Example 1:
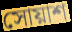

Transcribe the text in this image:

সোয়াশ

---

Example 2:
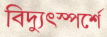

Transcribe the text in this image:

বিদ্যুৎস্পর্শে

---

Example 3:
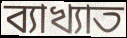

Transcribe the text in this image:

ব্যাখ্যাত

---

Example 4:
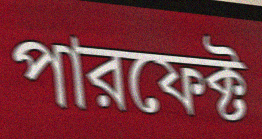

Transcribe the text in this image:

পারফেক্ট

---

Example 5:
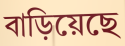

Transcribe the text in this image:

বাড়িয়েছে